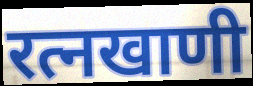
रत्नखाणी